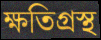
ক্ষতিগ্রস্থ